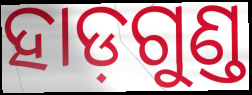
ହାଡ଼ଗୁଣ୍ଡ